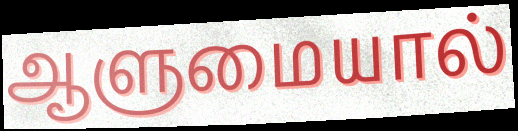
ஆளுமையால்